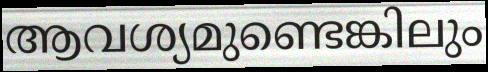
ആവശ്യമുണ്ടെങ്കിലും